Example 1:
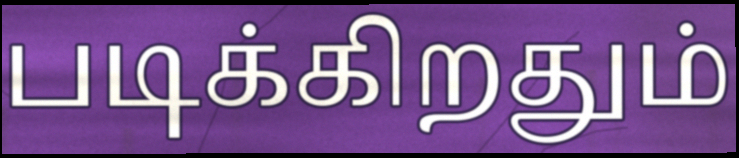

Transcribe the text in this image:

படிக்கிறதும்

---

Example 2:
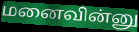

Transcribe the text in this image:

மனைவின்னு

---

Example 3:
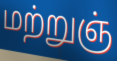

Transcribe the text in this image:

மற்றுஞ்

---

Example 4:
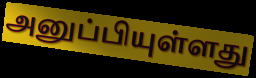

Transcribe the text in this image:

அனுப்பியுள்ளது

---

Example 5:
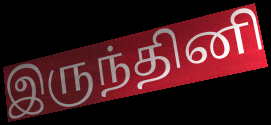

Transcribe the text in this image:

இருந்தினி